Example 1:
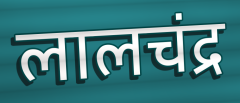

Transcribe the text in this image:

लालचंद्र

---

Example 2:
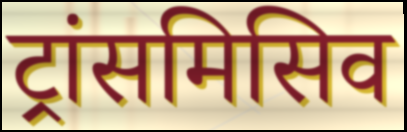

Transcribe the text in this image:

ट्रांसमिसिव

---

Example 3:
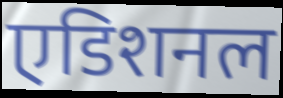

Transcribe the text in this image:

एडिशनल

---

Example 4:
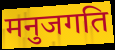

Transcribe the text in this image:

मनुजगति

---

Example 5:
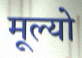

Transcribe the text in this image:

मूल्यो